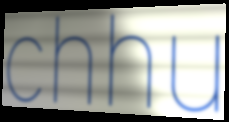
chhu